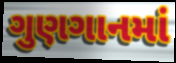
ગુણગાનમાં